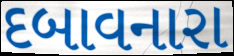
દબાવનારા